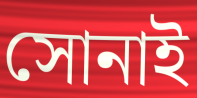
সোনাই